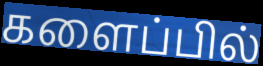
களைப்பில்